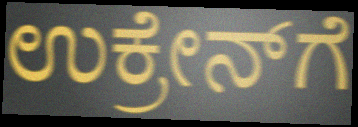
ಉಕ್ರೇನ್‌ಗೆ